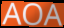
AOA